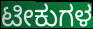
ಟೀಕುಗಳ